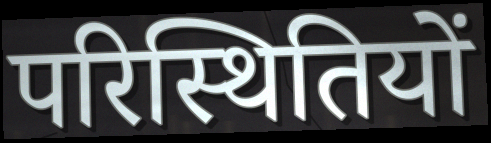
परिस्थितियों